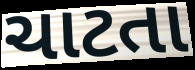
ચાટતા